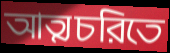
আত্মচরিতে